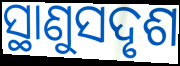
ସ୍ଥାଣୁସଦୃଶ